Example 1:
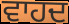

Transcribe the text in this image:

ਵਾਹਦ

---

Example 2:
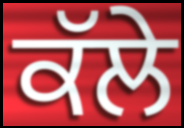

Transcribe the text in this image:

ਕੱਲੇ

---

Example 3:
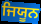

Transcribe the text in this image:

ਜਿਯੂਨ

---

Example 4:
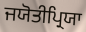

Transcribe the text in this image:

ਜਯੋਤੀਪ੍ਰਿਯਾ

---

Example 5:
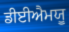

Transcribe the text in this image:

ਡੀਈਐਮਯੂ